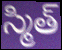
స్మిత్